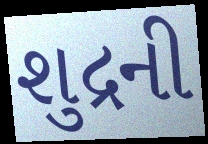
શુદ્રની